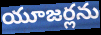
యూజర్లను